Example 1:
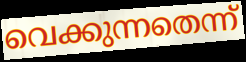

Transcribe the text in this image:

വെക്കുന്നതെന്ന്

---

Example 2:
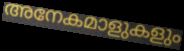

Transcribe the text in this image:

അനേകമാളുകളും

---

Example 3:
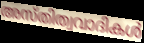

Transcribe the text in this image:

അസ്തിത്വവാദികൾ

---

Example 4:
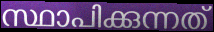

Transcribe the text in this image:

സ്ഥാപിക്കുന്നത്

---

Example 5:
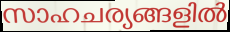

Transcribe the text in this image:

സാഹചര്യങ്ങളിൽ